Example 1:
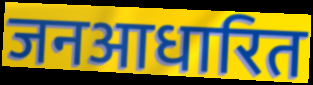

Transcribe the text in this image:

जनआधारित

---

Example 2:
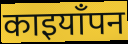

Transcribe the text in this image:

काइयाँपन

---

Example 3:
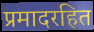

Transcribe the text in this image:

प्रमादरहित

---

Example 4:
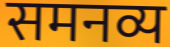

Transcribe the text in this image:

समनव्य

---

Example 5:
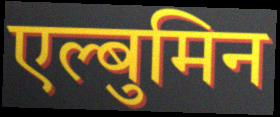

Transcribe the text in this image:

एल्बुमिन